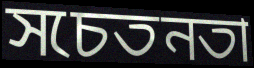
সচেতনতা